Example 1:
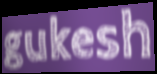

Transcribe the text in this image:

gukesh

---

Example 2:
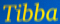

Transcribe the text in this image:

Tibba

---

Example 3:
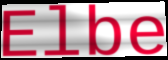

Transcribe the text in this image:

Elbe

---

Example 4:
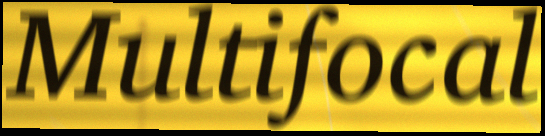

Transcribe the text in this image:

Multifocal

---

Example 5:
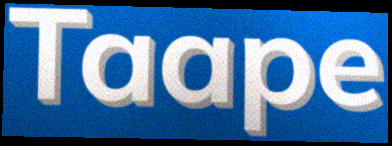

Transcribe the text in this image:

Taape